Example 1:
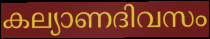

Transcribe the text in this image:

കല്യാണദിവസം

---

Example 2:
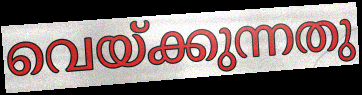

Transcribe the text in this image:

വെയ്ക്കുന്നതു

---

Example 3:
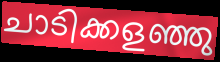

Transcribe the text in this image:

ചാടിക്കളഞ്ഞു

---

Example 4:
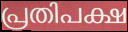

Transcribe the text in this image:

പ്രതിപക്ഷ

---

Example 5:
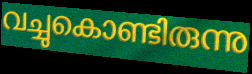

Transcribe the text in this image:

വച്ചുകൊണ്ടിരുന്നു